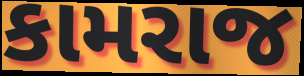
કામરાજ